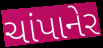
ચાંપાનેર